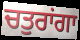
ਚਤੁਰਾਂਗਾ